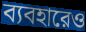
ব্যবহারেও